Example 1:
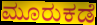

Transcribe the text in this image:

ಮೂರುಕಡೆ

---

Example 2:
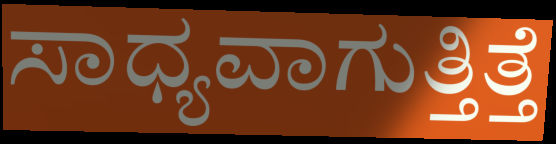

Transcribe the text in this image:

ಸಾಧ್ಯವಾಗುತ್ತಿತ್ತೆ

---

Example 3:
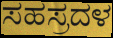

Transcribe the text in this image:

ಸಹಸ್ರದಳ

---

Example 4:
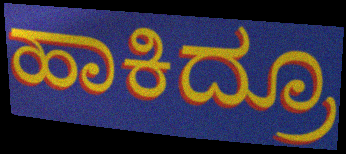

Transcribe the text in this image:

ಹಾಕಿದ್ರೂ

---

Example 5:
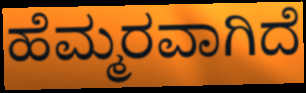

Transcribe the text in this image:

ಹೆಮ್ಮರವಾಗಿದೆ